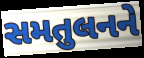
સમતુલનને